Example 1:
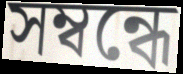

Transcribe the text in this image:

সম্বন্ধে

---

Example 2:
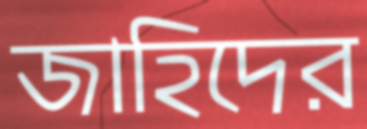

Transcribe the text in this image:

জাহিদের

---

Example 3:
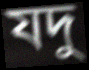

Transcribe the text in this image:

যদু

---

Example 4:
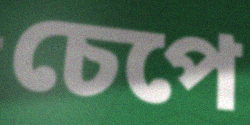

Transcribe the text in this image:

চেপে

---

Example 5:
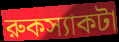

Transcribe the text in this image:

রুকস্যাকটা